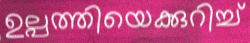
ഉല്പത്തിയെക്കുറിച്ച്